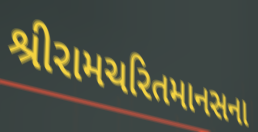
શ્રીરામચરિતમાનસના